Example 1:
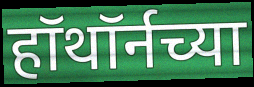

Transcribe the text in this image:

हॉथॉर्नच्या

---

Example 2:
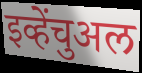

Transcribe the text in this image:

इव्हेंचुअल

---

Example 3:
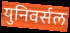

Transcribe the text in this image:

युनिवर्सल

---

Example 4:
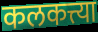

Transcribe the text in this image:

कलकत्त्या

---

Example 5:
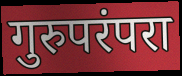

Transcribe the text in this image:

गुरुपरंपरा